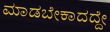
ಮಾಡಬೇಕಾದದ್ದೇ